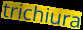
trichiura